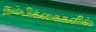
நம்பிக்கைகளில்